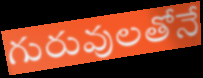
గురువులతోనే